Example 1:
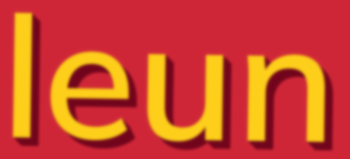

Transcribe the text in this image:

leun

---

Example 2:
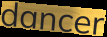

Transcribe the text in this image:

dancer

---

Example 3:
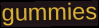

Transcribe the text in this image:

gummies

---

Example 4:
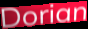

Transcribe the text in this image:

Dorian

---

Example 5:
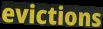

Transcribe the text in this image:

evictions